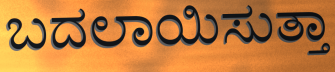
ಬದಲಾಯಿಸುತ್ತಾ